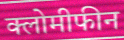
क्लोमीफीन